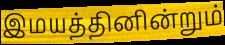
இமயத்தினின்றும்